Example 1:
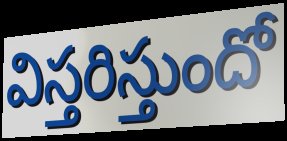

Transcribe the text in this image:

విస్తరిస్తుందో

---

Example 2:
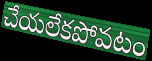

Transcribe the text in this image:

చేయలేకపోవటం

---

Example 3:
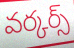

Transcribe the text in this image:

వర్కర్స్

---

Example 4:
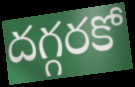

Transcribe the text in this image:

దగ్గరకో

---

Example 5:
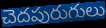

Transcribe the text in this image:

చెదపురుగులు